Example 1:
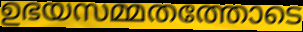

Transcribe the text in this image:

ഉഭയസമ്മതത്തോടെ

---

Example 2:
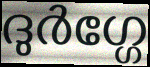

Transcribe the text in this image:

ദുർഗ്ഗേ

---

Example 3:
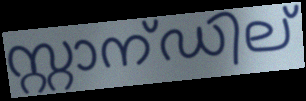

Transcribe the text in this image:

സ്റ്റാന്ഡില്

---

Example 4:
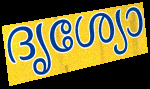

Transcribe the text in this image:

ദൃശ്യോ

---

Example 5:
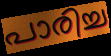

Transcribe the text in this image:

പാരിച്ച